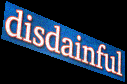
disdainful